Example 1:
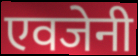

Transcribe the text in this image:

एवजेनी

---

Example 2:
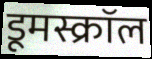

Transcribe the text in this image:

डूमस्क्रॉल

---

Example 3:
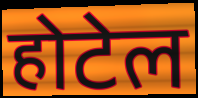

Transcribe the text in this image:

होटेल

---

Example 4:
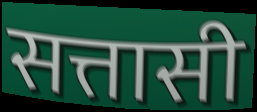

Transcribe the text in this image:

सत्तासी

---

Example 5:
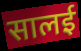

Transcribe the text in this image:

सालई